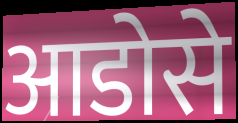
आडोसे